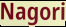
Nagori